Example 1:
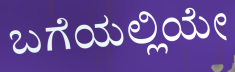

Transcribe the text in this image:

ಬಗೆಯಲ್ಲಿಯೇ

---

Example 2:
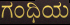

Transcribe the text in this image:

ಗಂಧಿಯ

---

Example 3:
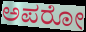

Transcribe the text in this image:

ಅಪರೋ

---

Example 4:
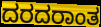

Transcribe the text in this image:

ದರದರಾಂತ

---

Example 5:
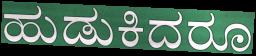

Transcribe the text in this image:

ಹುಡುಕಿದರೂ